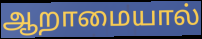
ஆறாமையால்